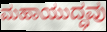
ಮಹಾಯುದ್ಧವು